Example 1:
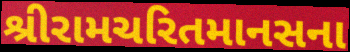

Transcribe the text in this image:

શ્રીરામચરિતમાનસના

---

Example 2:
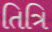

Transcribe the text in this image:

તિત્રિ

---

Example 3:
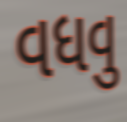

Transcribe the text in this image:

વધવુ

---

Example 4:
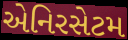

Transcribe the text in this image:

એનિરસેટમ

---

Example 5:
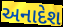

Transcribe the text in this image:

અનાદેશ